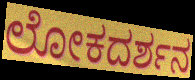
ಲೋಕದರ್ಶನ